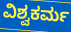
ವಿಶ್ವಕರ್ಮ